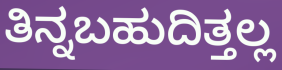
ತಿನ್ನಬಹುದಿತ್ತಲ್ಲ